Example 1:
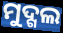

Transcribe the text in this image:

ମୁଦ୍ଗଲ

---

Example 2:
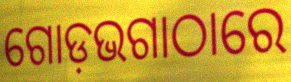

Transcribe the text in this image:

ଗୋଡ଼ଭଗାଠାରେ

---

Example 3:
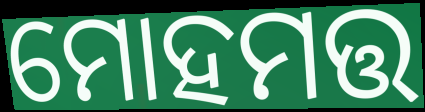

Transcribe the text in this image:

ମୋହମତ୍ତ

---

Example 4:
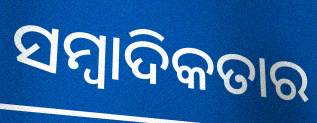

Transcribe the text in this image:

ସମ୍ୱାଦିକତାର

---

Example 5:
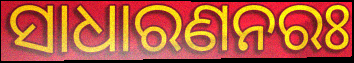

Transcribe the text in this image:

ସାଧାରଣନରଃ